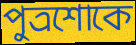
পুত্রশোকে